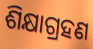
ଶିକ୍ଷାଗ୍ରହଣ